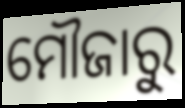
ମୌଜାରୁ